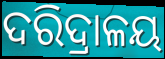
ଦରିଦ୍ରାଳୟ